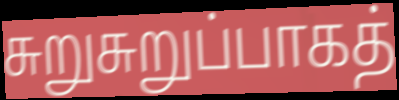
சுறுசுறுப்பாகத்